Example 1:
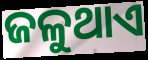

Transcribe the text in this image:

ଜଳୁଥାଏ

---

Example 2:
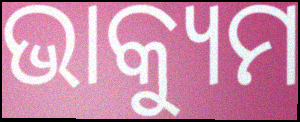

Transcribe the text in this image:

ଭାକ୍ୟୁମ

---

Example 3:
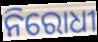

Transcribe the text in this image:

ନିରୋଧୀ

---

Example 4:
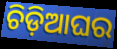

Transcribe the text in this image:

ଚିଡ଼ିଆଘର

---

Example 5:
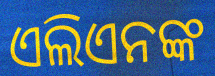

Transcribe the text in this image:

ଏଲିଏନଙ୍କ